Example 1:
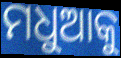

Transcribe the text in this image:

ମଧୁଆକୁ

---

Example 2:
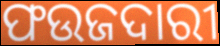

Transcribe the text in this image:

ଫଉଜଦାରୀ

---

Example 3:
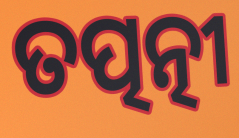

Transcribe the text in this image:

ତତ୍ପତ୍ନୀ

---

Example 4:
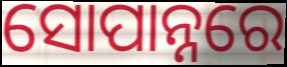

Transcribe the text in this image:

ସୋପାନ୍ନରେ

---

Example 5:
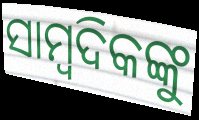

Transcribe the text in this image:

ସାମ୍ବଦିକଙ୍କୁ